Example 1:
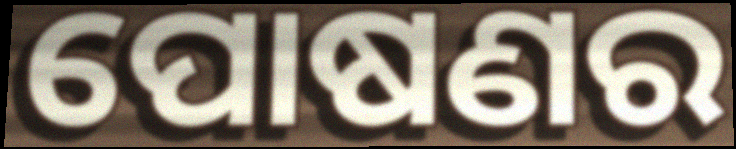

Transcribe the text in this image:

ପୋଷଣର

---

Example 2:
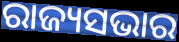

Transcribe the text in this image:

ରାଜ୍ୟସଭାର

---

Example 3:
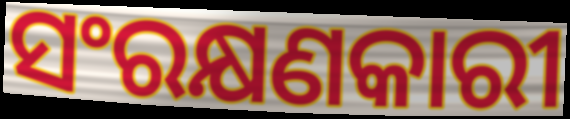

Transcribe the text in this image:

ସଂରକ୍ଷଣକାରୀ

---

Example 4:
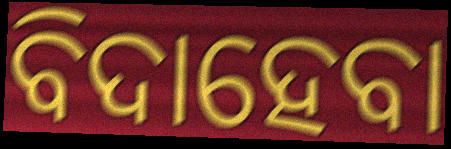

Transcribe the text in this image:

ବିଦାହେବା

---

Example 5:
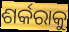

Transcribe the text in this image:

ଶର୍କରାକୁ